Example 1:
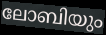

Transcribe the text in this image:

ലോബിയും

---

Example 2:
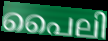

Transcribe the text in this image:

പൈലി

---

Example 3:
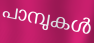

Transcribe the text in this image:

പാമ്പുകൾ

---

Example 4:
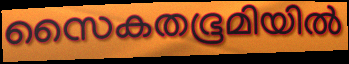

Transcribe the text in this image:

സൈകതഭൂമിയിൽ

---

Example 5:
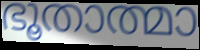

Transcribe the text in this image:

ഭൂതാത്മാ